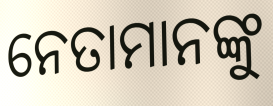
ନେତାମାନଙ୍କୁ